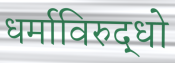
धर्माविरुद्धो